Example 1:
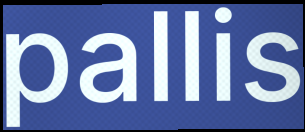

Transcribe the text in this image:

pallis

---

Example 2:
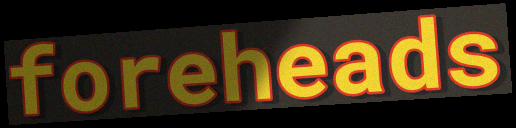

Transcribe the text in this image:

foreheads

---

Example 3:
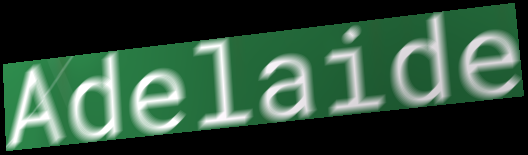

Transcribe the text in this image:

Adelaide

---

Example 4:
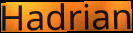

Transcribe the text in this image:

Hadrian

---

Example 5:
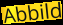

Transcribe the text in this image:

Abbild